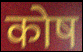
कोष